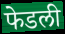
फेडली